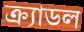
ক্র্যাডল